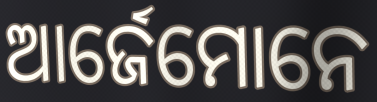
ଆର୍ଜେମୋନେ